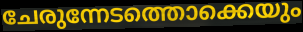
ചേരുന്നേടത്തൊക്കെയും